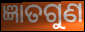
ଜ୍ଞାତଗୁଣ